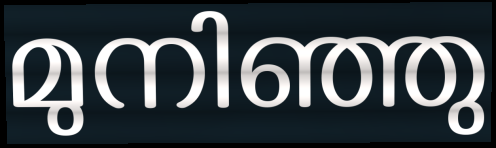
മുനിഞ്ഞു